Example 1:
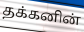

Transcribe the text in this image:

தக்கனின்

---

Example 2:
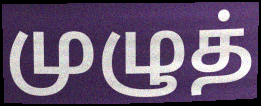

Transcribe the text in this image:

முழுத்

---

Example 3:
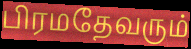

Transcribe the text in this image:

பிரமதேவரும்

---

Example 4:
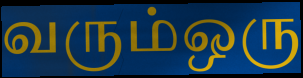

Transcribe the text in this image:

வரும்ஒரு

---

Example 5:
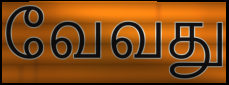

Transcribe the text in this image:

வேவது